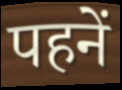
पहनें